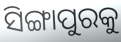
ସିଙ୍ଗାପୁରକୁ